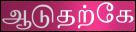
ஆடுதற்கே